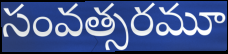
సంవత్సరమూ